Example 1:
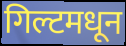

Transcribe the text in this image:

गिल्टमधून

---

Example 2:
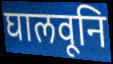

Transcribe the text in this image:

घालवूनि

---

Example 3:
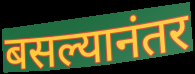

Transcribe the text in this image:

बसल्यानंतर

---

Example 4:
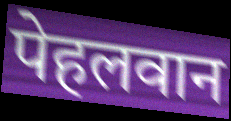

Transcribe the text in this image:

पेहलवान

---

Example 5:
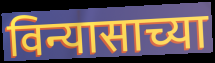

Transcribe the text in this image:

विन्यासाच्या